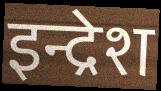
इन्द्रेश